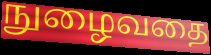
நுழைவதை